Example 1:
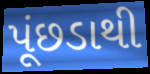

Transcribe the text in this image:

પૂંછડાથી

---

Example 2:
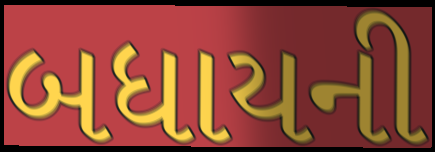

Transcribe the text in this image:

બધાયની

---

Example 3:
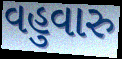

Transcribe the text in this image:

વહુવારુ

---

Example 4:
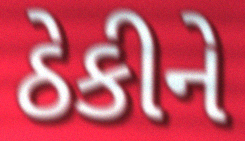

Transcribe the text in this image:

ઠેકીને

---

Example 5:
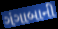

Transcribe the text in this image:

ગંગાબાની